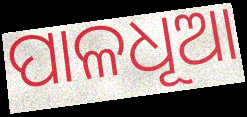
ପାଳଧୂଆ